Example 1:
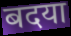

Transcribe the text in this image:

बदया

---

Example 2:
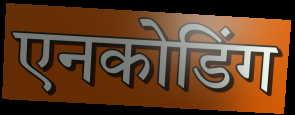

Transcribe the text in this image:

एनकोडिंग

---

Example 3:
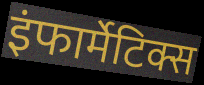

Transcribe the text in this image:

इंफार्मेटिक्स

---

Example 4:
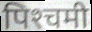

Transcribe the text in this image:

पिश्चमी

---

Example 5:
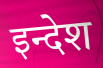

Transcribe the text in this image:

इन्देश